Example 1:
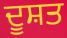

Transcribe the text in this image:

ਦੂਸ਼ਤ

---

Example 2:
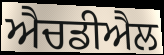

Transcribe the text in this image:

ਐਚਡੀਐਲ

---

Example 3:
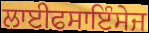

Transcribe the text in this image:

ਲਾਈਫਸਾਇੰਸੇਜ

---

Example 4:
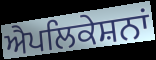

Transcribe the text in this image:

ਐਪਲਿਕੇਸ਼ਨਾਂ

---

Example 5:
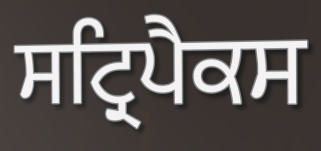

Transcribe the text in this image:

ਸਟ੍ਰਿਪੈਕਸ